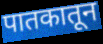
पातकातून